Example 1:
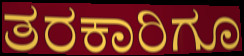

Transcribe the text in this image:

ತರಕಾರಿಗೂ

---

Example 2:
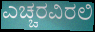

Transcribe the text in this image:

ಎಚ್ಚರವಿರಲಿ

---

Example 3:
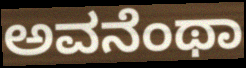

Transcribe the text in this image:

ಅವನೆಂಥಾ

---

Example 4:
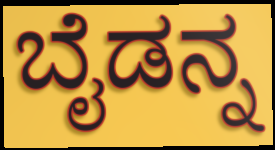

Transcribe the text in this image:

ಬೈಡನ್ನ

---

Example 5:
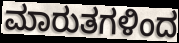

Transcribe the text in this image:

ಮಾರುತಗಳಿಂದ